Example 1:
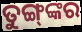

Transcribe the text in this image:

ତୁଙ୍ଗ୍‍ଙ୍କର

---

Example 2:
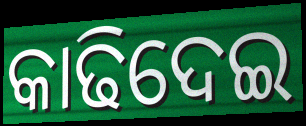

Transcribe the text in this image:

କାଢିଦେଇ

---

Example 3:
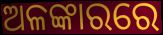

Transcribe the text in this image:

ଅଳଙ୍କାରରେ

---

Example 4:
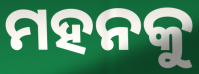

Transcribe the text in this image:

ମହନକୁ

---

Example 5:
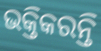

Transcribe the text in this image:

ଭକ୍ତିକରନ୍ତି